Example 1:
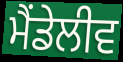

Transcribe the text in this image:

ਮੈਂਡੇਲੀਵ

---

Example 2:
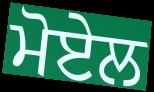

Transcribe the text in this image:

ਮੋਏਲ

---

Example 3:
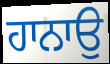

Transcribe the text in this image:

ਹਾਨਾਉ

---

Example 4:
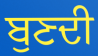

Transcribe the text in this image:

ਬੁਣਦੀ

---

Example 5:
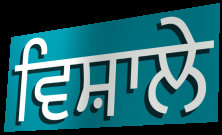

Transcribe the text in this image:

ਵਿਸ਼ਾਲੇ